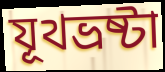
যূথভ্রষ্টা